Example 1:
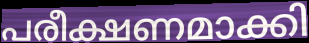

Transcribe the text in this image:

പരീക്ഷണമാക്കി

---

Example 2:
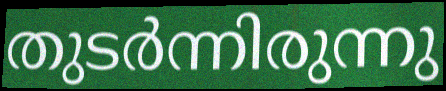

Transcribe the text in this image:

തുടർന്നിരുന്നു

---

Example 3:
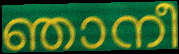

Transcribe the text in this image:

ഞാനീ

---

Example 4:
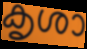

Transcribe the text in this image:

കൃശാ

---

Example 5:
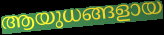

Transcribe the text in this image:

ആയുധങ്ങളായ